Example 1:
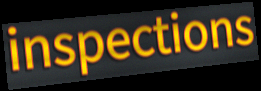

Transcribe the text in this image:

inspections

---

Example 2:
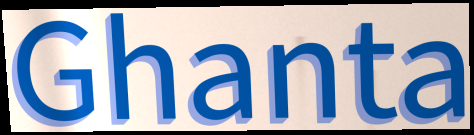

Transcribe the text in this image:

Ghanta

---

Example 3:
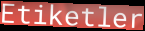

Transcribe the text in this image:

Etiketler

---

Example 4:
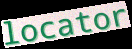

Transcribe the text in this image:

locator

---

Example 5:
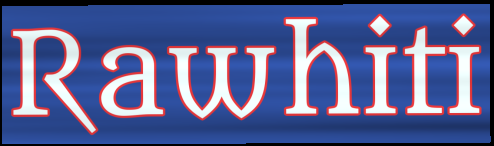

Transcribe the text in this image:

Rawhiti